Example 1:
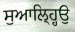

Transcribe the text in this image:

ਸੁਆਲ੍ਹ੍ਹਿਉ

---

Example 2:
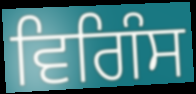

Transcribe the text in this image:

ਵਿਗਿੰਸ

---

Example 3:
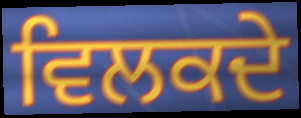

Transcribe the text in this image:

ਵਿਲਕਦੇ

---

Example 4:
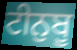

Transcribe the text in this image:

ਟੀਨੁਬੂ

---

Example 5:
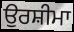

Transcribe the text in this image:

ਉਰਸ਼ੀਮਾ